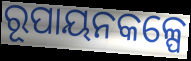
ରୂପାୟନକଳ୍ପେ